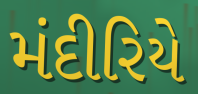
મંદીરિયે